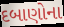
દબાણોના